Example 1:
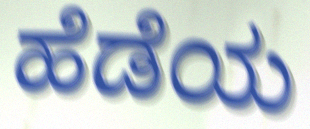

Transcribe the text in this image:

ಹೆಡೆಯ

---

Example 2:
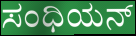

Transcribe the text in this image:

ಸಂಧಿಯನ್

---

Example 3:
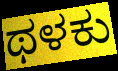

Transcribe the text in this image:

ಥಳಕು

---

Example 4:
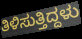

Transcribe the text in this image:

ತಿಳಿಸುತ್ತಿದ್ದಳು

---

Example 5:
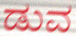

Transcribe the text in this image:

ಡುವ